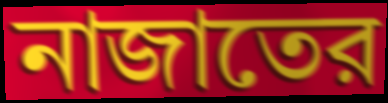
নাজাতের